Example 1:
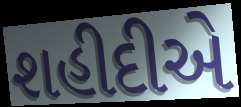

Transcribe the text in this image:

શહીદીએ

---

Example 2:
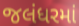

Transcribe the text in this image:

જલંધરમાં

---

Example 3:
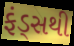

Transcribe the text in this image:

ફંડ્સથી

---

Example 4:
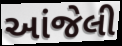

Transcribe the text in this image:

આંજેલી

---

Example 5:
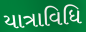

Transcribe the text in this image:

યાત્રાવિધિ